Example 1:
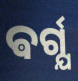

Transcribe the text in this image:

ଵର୍ଗ୍ଯ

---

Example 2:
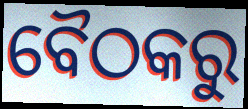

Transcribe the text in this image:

ବୈଠକରୁ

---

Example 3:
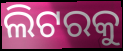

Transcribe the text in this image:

ଲିଟରକୁ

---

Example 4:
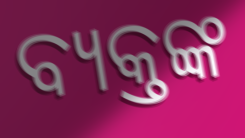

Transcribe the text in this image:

ବ୍ୟକ୍ତଙ୍କ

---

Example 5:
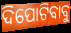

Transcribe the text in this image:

ଦିପୋଟିବାବୁ